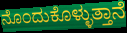
ನೊಂದುಕೊಳ್ಳುತ್ತಾನೆ